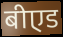
बीएड